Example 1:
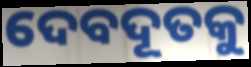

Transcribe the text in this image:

ଦେବଦୂତକୁ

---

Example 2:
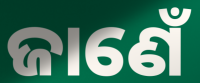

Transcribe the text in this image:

ଜାଣେଁ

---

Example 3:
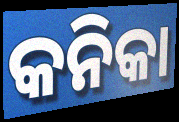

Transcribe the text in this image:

କନିକା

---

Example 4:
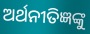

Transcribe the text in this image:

ଅର୍ଥନୀତିଜ୍ଞଙ୍କୁ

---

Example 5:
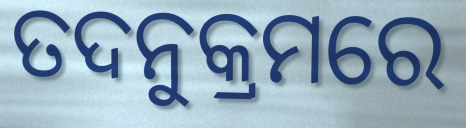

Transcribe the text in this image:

ତଦନୁକ୍ରମରେ